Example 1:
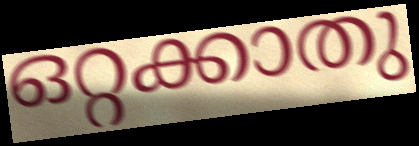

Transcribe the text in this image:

ഒറ്റക്കാതു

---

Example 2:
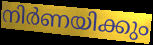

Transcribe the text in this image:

നിർണയിക്കും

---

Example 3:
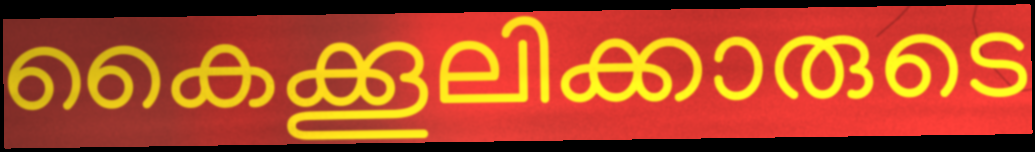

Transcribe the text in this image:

കൈക്കൂലിക്കാരുടെ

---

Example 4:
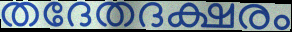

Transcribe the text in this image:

തദേതദക്ഷരം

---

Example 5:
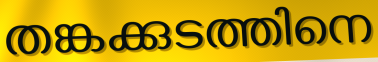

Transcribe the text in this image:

തങ്കക്കുടത്തിനെ